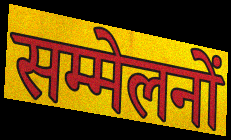
सम्मेलनों